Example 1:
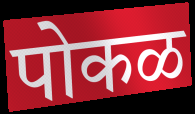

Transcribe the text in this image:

पोकळ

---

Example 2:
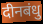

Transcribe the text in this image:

दीनबंधु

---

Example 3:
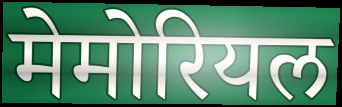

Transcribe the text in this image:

मेमोरियल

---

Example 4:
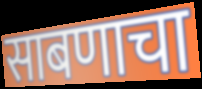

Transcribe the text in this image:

साबणाचा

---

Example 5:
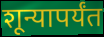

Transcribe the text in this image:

शून्यापर्यंत